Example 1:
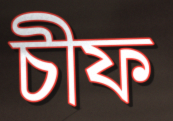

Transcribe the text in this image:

চীফ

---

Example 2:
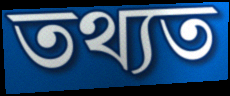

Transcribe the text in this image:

তথ্যত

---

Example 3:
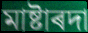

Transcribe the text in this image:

মাষ্টাৰদা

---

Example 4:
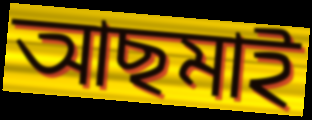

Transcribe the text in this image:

আছমাই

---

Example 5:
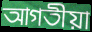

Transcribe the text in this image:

আগতীয়া